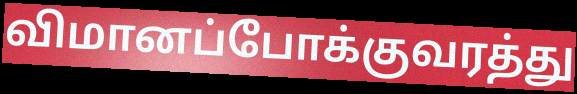
விமானப்போக்குவரத்து